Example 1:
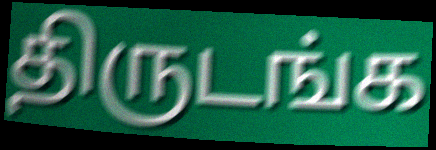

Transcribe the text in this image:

திருடங்க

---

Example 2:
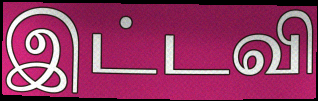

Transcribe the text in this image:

இட்டவி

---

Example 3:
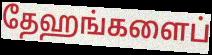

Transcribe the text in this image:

தேஹங்களைப்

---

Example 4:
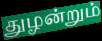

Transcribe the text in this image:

துழன்றும்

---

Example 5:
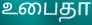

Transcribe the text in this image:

உபைதா